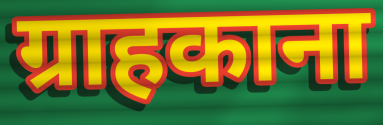
ग्राहकाना